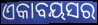
ଏକାବୟସର